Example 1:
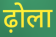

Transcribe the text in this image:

ढ़ोला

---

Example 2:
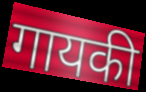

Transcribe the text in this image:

गायकी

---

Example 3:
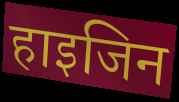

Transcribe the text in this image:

हाइजिन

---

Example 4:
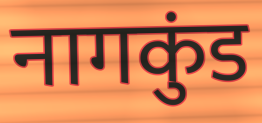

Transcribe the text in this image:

नागकुंड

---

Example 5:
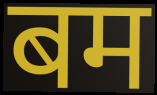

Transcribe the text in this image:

बम